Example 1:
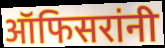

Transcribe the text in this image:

ऑफिसरांनी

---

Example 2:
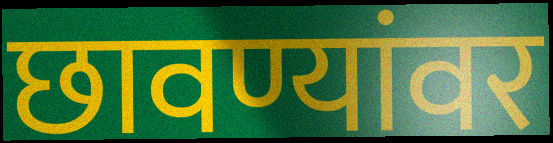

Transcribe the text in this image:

छावण्यांवर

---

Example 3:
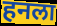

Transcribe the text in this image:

हनला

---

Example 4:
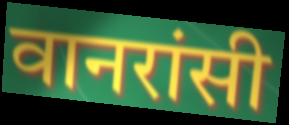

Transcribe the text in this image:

वानरांसी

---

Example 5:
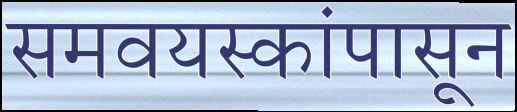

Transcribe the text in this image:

समवयस्कांपासून